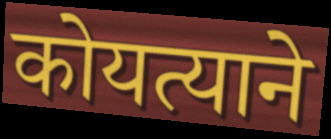
कोयत्याने